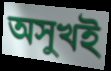
অসুখই